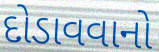
દોડાવવાનો